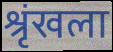
श्रृंखला